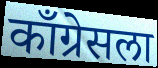
काँग्रेसला